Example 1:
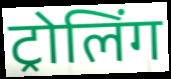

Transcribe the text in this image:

ट्रोलिंग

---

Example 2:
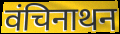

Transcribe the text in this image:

वंचिनाथन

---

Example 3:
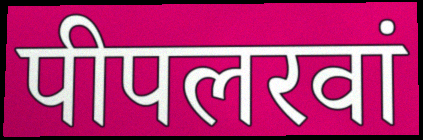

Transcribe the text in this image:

पीपलरवां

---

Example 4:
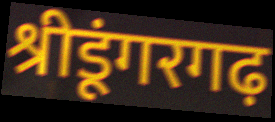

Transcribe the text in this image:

श्रीडूंगरगढ़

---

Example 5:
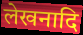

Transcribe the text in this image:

लेखनादि